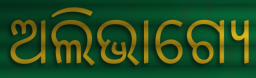
ଅଲିଭାଗ୍ୟେ